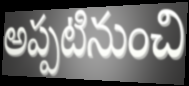
అప్పటినుంచి